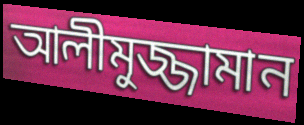
আলীমুজ্জামান